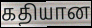
கதியான